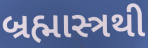
બ્રહ્માસ્ત્રથી